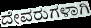
ದೇವರುಗಳಾಗಿ